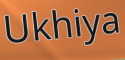
Ukhiya